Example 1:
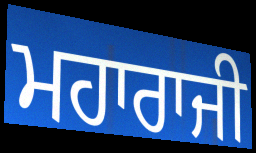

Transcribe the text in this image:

ਮਹਾਰਾਜੀ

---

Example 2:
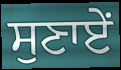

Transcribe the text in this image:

ਸੁਣਾਏਂ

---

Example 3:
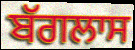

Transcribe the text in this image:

ਬੱਗਲਾਸ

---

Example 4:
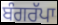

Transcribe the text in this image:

ਬੰਗਰੱਪਾ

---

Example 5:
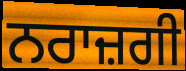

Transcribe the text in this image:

ਨਰਾਜ਼ਗੀ